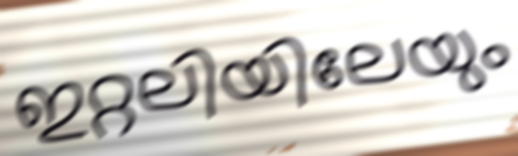
ഇറ്റലിയിലേയും